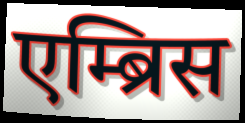
एम्ब्रिस